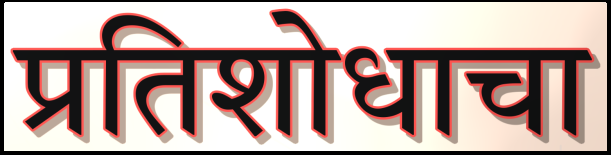
प्रतिशोधाचा